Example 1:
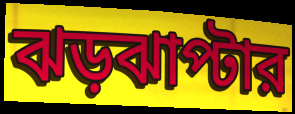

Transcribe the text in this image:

ঝড়ঝাপ্টার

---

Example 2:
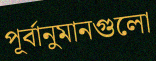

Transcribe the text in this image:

পূর্বানুমানগুলো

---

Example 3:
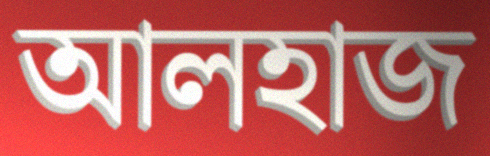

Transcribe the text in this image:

আলহাজ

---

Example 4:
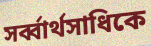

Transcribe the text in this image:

সর্ব্বার্থসাধিকে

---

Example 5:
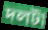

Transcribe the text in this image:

দলটা